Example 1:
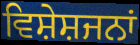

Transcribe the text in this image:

ਵਿਸ਼ੇਸ਼ਜਨਾਂ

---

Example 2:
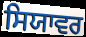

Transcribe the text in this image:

ਸਿਯਾਵਰ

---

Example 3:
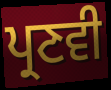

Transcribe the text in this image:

ਪ੍ਰਣਵੀ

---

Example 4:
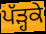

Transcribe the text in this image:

ਪੱੜ੍ਹਕੇ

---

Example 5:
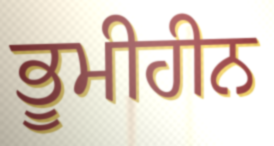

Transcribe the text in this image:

ਭੂਮੀਹੀਨ